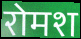
रोमश